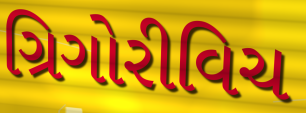
ગ્રિગોરીવિચ